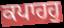
ਕਪਾਹਹੁ